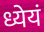
ध्येयं